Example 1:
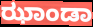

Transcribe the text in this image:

ಝಾಂಡಾ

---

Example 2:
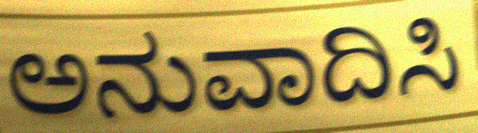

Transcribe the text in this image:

ಅನುವಾದಿಸಿ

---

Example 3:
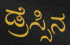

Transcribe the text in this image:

ಡ್ರೆಸ್ಸಿನ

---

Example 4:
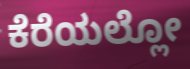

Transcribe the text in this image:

ಕೆರೆಯಲ್ಲೋ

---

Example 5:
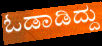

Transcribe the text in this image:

ಓಡಾಡಿದ್ದು